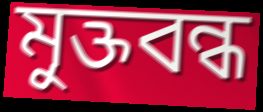
মুক্তবন্ধ